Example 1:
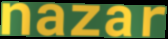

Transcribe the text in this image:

nazar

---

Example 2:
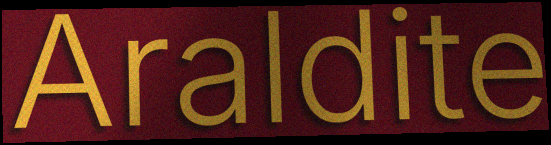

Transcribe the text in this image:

Araldite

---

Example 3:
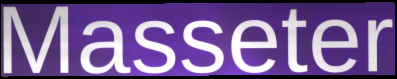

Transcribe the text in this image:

Masseter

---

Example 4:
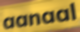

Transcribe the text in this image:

aanaal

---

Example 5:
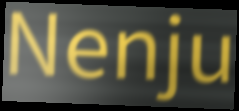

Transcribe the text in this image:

Nenju